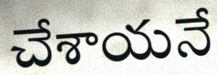
చేశాయనే